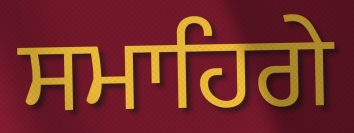
ਸਮਾਹਿਗੇ